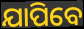
ଯାପିବେ